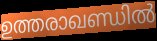
ഉത്തരാഖണ്ഡിൽ